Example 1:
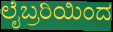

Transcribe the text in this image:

ಲೈಬ್ರರಿಯಿಂದ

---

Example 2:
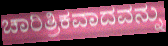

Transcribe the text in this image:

ಚಾರಿತ್ರಿಕವಾದವನ್ನು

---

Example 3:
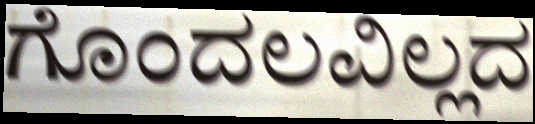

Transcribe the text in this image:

ಗೊಂದಲವಿಲ್ಲದ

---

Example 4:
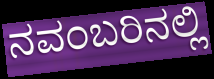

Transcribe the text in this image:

ನವಂಬರಿನಲ್ಲಿ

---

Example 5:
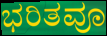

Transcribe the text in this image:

ಭರಿತವೂ